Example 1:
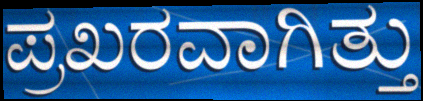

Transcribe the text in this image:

ಪ್ರಖರವಾಗಿತ್ತು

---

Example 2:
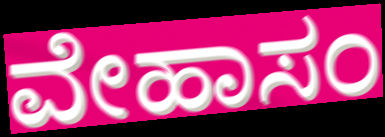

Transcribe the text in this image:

ವೇಹಾಸಂ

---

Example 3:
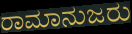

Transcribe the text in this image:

ರಾಮಾನುಜರು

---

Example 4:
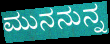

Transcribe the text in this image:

ಮುನನುನ್ನ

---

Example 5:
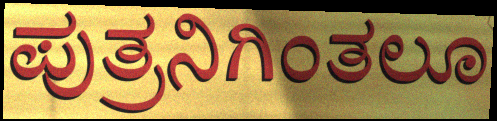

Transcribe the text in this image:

ಪುತ್ರನಿಗಿಂತಲೂ